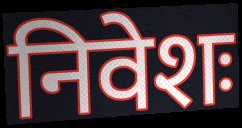
निवेशः